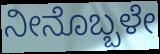
ನೀನೊಬ್ಬಳೇ